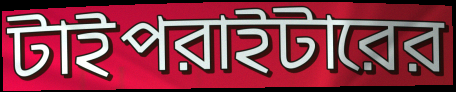
টাইপরাইটারের